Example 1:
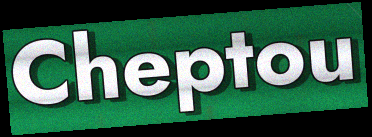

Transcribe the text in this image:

Cheptou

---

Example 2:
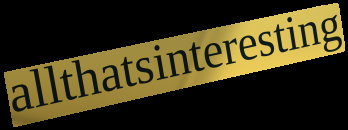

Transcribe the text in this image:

allthatsinteresting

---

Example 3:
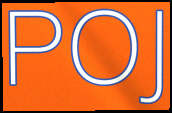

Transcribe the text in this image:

POJ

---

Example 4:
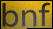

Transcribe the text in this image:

bnf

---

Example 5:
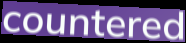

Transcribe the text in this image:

countered